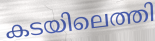
കടയിലെത്തി